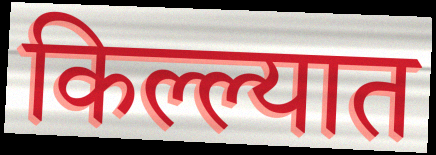
किल्ल्यात